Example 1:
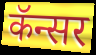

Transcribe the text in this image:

कॅन्सर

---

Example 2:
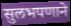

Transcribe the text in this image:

सुलभपणाने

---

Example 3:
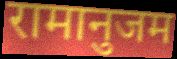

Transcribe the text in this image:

रामानुजम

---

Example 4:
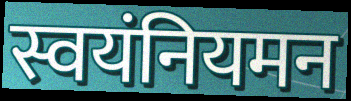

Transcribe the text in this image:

स्वयंनियमन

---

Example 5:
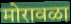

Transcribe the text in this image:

मोरावळा